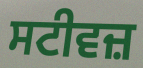
ਸਟੀਵਜ਼